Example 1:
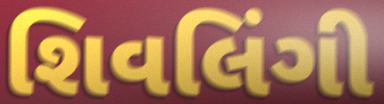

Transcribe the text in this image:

શિવલિંગી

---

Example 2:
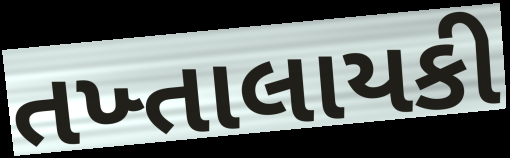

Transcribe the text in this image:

તખ્તાલાયકી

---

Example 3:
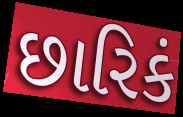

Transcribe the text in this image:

છારિકં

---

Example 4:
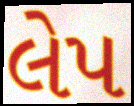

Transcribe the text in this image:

લેપ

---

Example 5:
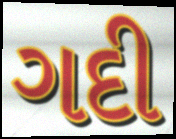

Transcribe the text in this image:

ગદી